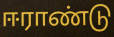
ஈராண்டு